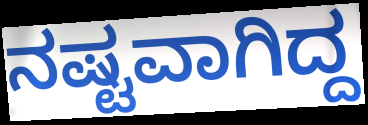
ನಷ್ಟವಾಗಿದ್ದ